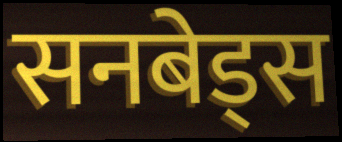
सनबेड्स